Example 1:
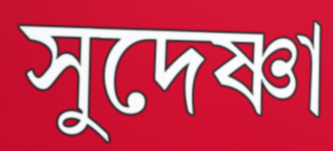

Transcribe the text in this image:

সুদেষ্ণা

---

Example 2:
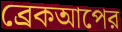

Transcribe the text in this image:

ব্রেকআপের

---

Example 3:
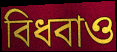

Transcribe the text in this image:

বিধবাও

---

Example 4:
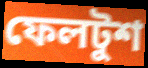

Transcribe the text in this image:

ফেলটুশ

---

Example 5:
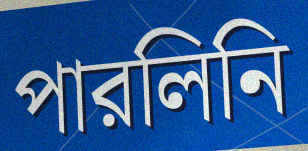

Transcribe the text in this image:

পারলিনি